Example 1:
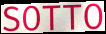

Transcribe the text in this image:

SOTTO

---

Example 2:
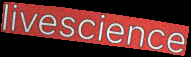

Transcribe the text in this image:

livescience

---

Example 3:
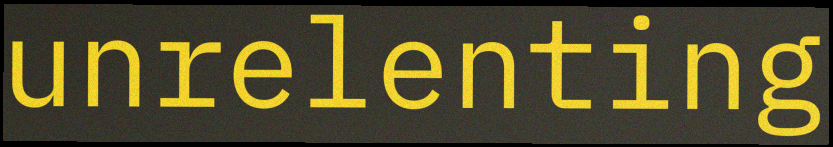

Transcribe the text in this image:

unrelenting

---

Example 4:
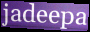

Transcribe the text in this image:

jadeepa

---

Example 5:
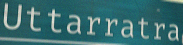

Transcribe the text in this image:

Uttarratra